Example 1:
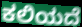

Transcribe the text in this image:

ಕಲಿಯದೆ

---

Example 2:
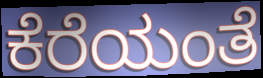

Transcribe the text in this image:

ಕೆರೆಯಂತೆ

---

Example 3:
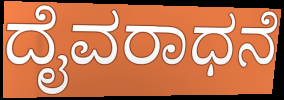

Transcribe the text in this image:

ದೈವರಾಧನೆ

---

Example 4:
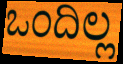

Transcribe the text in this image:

ಒಂದಿಲ್ಲ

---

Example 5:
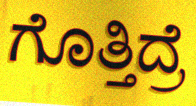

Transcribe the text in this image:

ಗೊತ್ತಿದ್ರೆ